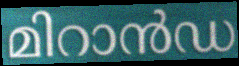
മിറാൻഡ